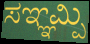
ಸಞ್ಞಮ್ಪಿ